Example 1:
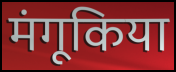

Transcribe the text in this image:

मंगूकिया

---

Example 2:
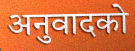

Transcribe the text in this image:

अनुवादको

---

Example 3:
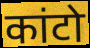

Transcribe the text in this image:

कांटो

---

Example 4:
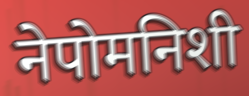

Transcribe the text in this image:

नेपोमनिशी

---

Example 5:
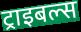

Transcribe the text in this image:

ट्राइबल्स